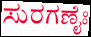
ಸುರಗಣೈಃ